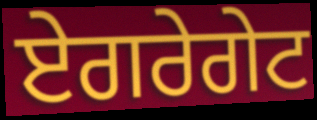
ਏਗਰੇਗੇਟ